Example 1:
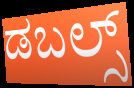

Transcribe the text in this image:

ಡಬಲ್ಸ್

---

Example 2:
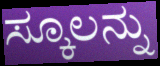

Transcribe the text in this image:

ಸ್ಕೂಲನ್ನು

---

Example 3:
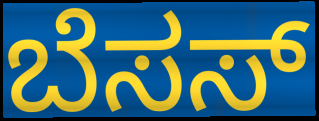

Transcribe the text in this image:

ಬೆಸಸ್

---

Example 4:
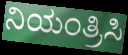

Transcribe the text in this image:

ನಿಯಂತ್ರಿಸಿ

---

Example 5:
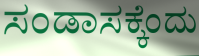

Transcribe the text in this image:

ಸಂಡಾಸಕ್ಕೆಂದು